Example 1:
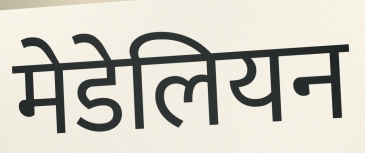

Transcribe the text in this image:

मेडेलियन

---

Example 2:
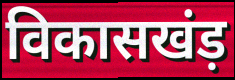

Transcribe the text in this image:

विकासखंड़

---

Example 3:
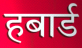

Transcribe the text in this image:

हबार्ड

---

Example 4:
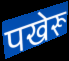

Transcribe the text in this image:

पखेरू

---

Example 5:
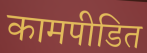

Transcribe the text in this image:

कामपीडित